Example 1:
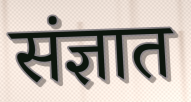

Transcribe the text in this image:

संज्ञात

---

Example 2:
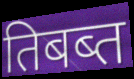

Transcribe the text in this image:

तिबब्त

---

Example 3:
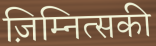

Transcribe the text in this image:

ज़िम्नित्सकी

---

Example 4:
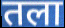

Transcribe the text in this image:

तला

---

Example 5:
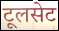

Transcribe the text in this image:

टूलसेट